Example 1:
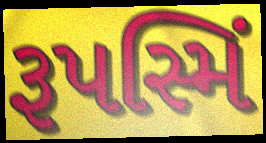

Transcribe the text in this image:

રૂપસ્મિં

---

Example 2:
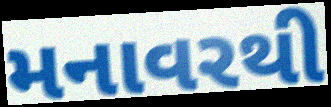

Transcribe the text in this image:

મનાવરથી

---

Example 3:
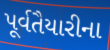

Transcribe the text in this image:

પૂર્વતૈયારીના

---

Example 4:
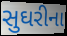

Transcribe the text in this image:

સુઘરીના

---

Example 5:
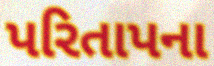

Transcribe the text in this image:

પરિતાપના